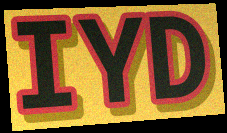
IYD